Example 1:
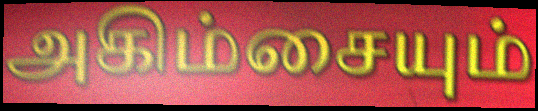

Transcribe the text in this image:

அகிம்சையும்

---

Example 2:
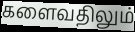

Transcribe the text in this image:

களைவதிலும்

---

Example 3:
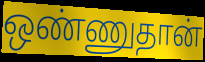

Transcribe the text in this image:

ஒண்ணுதான்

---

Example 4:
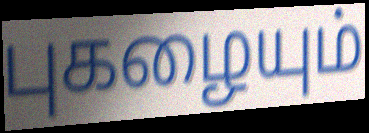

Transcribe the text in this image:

புகழையும்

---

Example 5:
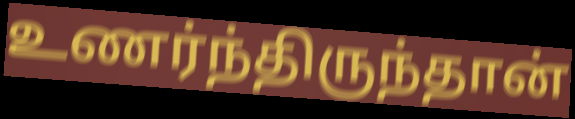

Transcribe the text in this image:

உணர்ந்திருந்தான்